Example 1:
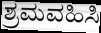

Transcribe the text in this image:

ಶ್ರಮವಹಿಸಿ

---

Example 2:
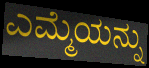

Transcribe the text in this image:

ಎಮ್ಮೆಯನ್ನು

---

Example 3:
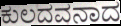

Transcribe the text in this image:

ಕುಲದವನಾದ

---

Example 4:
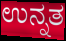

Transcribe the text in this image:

ಉನ್ನತ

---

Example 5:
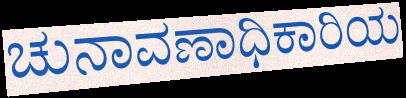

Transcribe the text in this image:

ಚುನಾವಣಾಧಿಕಾರಿಯ